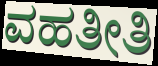
ವಹತೀತಿ